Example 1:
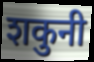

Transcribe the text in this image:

शकुनी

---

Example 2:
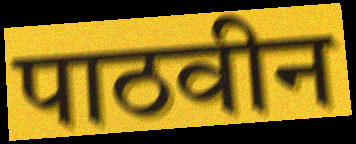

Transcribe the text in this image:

पाठवीन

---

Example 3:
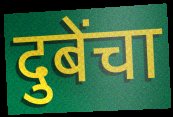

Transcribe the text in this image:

दुबेंचा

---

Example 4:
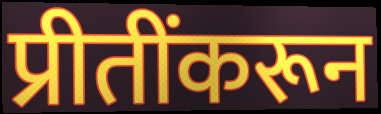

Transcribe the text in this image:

प्रीतींकरून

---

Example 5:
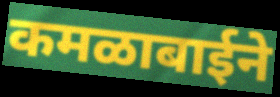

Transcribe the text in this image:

कमळाबाईने